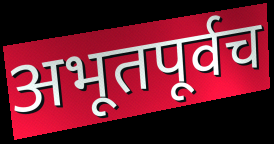
अभूतपूर्वच